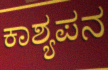
ಕಾಶ್ಯಪನ